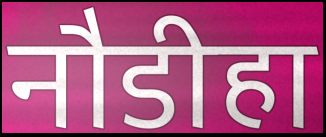
नौडीहा